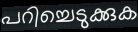
പറിച്ചെടുക്കുക